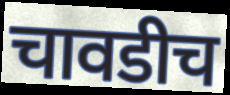
चावडीच